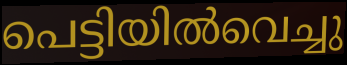
പെട്ടിയിൽവെച്ചു